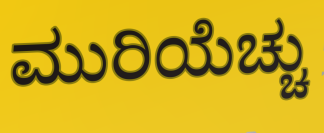
ಮುರಿಯೆಚ್ಚು